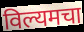
विल्यमचा